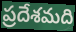
ప్రదేశమది